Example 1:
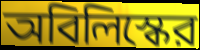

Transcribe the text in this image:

অবিলিস্কের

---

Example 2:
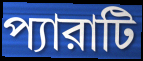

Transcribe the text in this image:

প্যারাটি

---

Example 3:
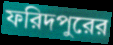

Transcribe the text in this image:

ফরিদপুরের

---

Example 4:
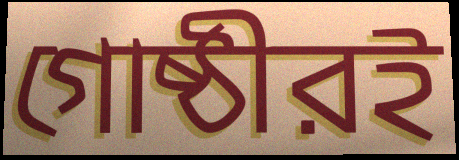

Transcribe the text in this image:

গোষ্ঠীরই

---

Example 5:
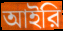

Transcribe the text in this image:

আইরি